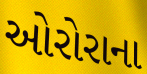
ઓરોરાના